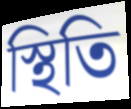
স্থিতি